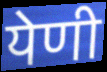
येणी